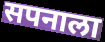
सपनाला